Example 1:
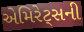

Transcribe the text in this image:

એમિરેટ્સની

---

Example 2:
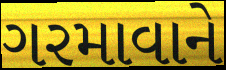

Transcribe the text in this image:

ગરમાવાને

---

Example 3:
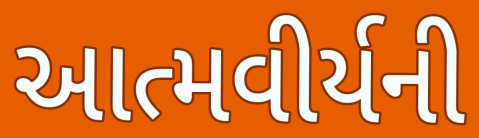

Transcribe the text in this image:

આત્મવીર્યની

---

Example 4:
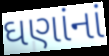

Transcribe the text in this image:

ઘણાંનાં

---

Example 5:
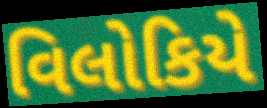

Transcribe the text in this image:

વિલોકિયે